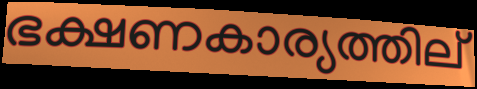
ഭക്ഷണകാര്യത്തില്